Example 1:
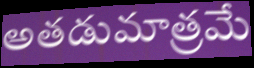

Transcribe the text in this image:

అతడుమాత్రమే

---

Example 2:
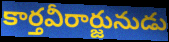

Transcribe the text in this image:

కార్తవీరార్జునుడు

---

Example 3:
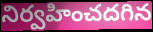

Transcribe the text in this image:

నిర్వహించదగిన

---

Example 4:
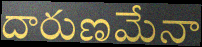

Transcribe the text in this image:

దారుణమేనా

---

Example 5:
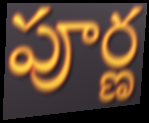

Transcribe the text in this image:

పూర్ణ